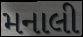
મનાલી